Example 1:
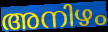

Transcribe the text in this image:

അനിഴം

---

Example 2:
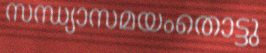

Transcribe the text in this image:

സന്ധ്യാസമയംതൊട്ടു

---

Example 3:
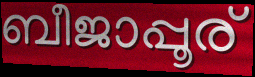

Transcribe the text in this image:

ബീജാപ്പൂര്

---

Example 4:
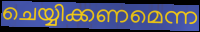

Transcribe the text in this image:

ചെയ്യിക്കണമെന്ന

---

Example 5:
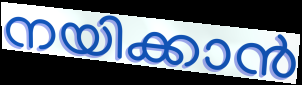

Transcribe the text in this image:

നയിക്കാൻ